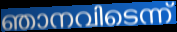
ഞാനവിടെന്ന്